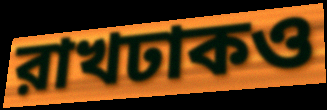
রাখঢাকও